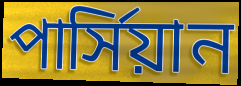
পার্সিয়ান